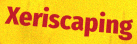
Xeriscaping